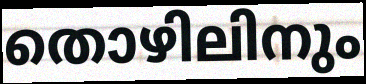
തൊഴിലിനും